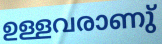
ഉള്ളവരാണു്